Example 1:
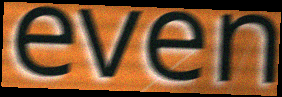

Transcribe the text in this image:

even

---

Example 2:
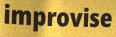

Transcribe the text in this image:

improvise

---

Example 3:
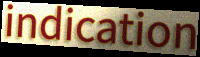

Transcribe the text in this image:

indication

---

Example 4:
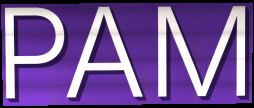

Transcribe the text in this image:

PAM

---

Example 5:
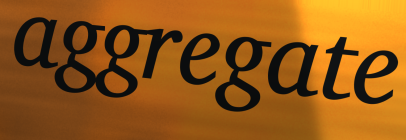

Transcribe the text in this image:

aggregate